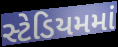
સ્ટેડિયમમાં